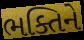
ભક્તિને